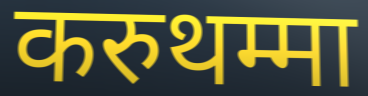
करुथम्मा